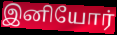
இனியோர்